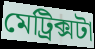
মেট্রিক্সটা